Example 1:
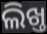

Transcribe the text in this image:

ଲିଖ୍ତ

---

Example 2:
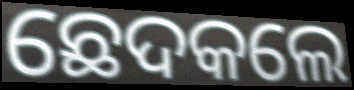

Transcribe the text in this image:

ଛେଦକଲେ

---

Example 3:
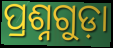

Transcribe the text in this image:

ପ୍ରଶ୍ନଗୁଡ଼ା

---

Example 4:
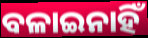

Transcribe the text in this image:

ବଳାଇନାହିଁ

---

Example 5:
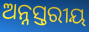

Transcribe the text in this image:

ଅନ୍ନସ୍ତରୀୟ